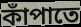
কাঁপাতে